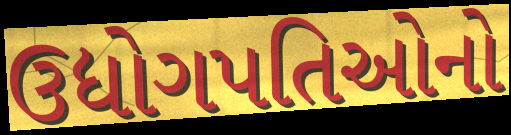
ઉદ્યોગપતિઓનો